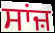
ਸਾਂਜ਼